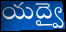
యద్వై